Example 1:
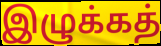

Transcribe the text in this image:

இழுக்கத்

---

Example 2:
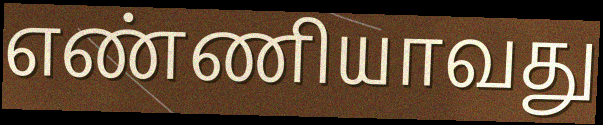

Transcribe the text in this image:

எண்ணியாவது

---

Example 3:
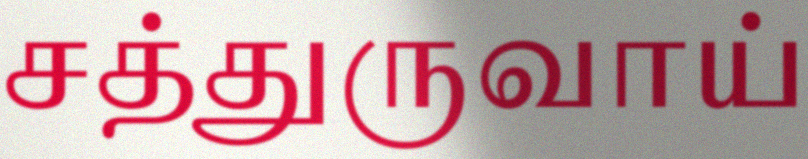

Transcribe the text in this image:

சத்துருவாய்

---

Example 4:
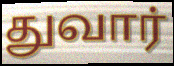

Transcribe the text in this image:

துவார்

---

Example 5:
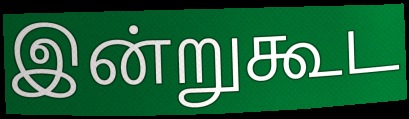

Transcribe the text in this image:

இன்றுகூட